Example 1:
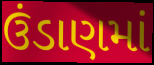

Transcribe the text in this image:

ઉંડાણમાં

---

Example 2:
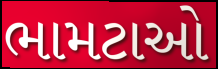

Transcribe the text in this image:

ભામટાઓ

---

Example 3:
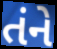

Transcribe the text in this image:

તંને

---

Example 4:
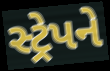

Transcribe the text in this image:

સ્ટ્રેપને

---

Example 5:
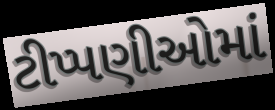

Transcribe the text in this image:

ટીપ્પણીઓમાં